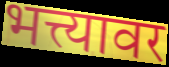
भत्त्यावर